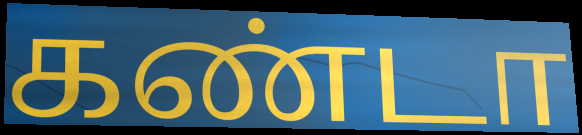
கண்டா